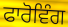
ਫਾਰੋਵਿੰਗ